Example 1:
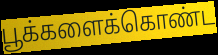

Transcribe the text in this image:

பூக்களைக்கொண்ட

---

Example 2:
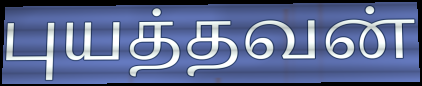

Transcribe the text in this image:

புயத்தவன்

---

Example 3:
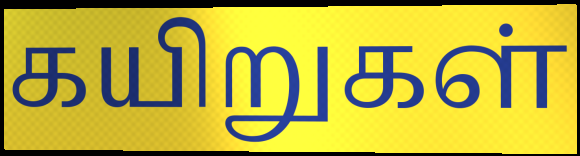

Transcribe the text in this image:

கயிறுகள்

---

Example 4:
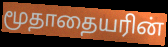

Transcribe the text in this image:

மூதாதையரின்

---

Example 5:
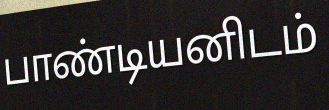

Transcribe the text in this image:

பாண்டியனிடம்